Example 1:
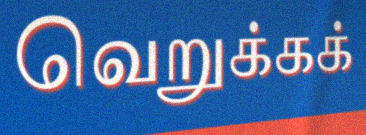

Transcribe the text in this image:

வெறுக்கக்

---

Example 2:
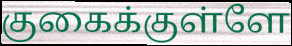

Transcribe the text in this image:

குகைக்குள்ளே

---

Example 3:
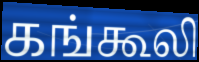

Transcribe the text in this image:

கங்கூலி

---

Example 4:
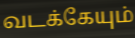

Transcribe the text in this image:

வடக்கேயும்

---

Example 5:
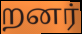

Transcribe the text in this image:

றனர்